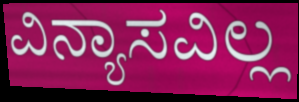
ವಿನ್ಯಾಸವಿಲ್ಲ